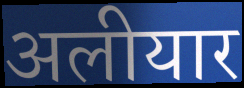
अलीयार